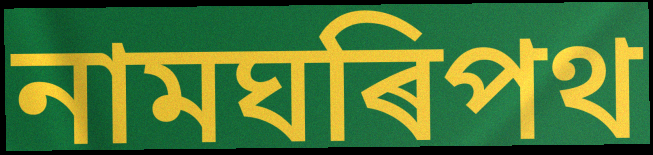
নামঘৰিপথ